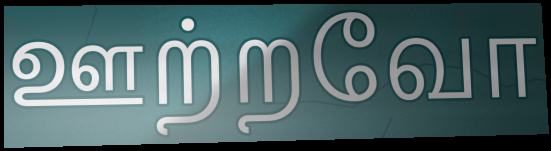
ஊற்றவோ